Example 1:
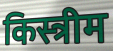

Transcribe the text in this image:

किस्त्रीम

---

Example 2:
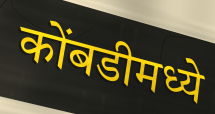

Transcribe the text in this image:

कोंबडीमध्ये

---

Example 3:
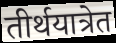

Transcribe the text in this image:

तीर्थयात्रेत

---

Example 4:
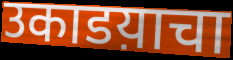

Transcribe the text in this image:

उकाडय़ाचा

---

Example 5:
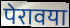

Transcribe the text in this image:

पेरावया